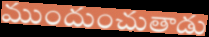
ముందుంచుతాడు